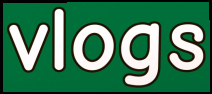
vlogs